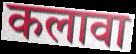
कलावा